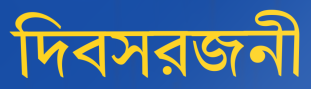
দিবসরজনী